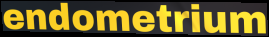
endometrium